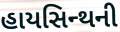
હાયસિન્થની